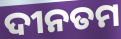
ଦୀନତମ